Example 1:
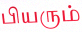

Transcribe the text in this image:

பியரும்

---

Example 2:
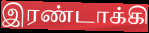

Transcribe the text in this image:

இரண்டாக்கி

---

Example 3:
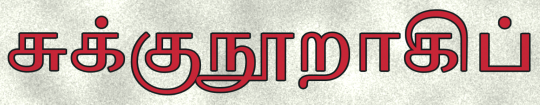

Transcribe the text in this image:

சுக்குநூறாகிப்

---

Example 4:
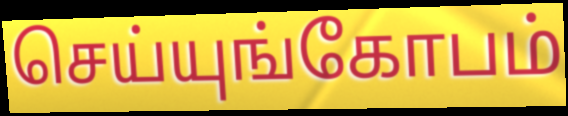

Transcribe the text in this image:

செய்யுங்கோபம்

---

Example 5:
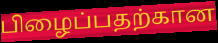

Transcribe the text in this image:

பிழைப்பதற்கான